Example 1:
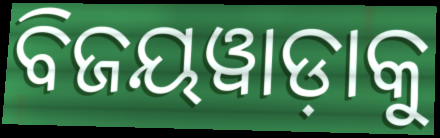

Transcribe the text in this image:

ବିଜୟୱାଡ଼ାକୁ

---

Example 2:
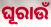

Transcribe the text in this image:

ଘୂରାଉଁ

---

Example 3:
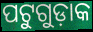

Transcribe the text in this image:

ପଟୁଗୁଡ଼ାକ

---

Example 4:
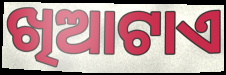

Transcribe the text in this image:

ଖିଆଟାଏ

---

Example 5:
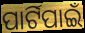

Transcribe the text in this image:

ପାର୍ଟିପାଇଁ